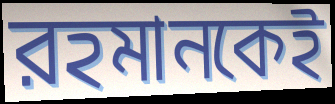
রহমানকেই